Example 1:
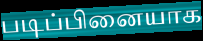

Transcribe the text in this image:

படிப்பினையாக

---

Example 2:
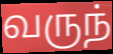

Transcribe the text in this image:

வருந்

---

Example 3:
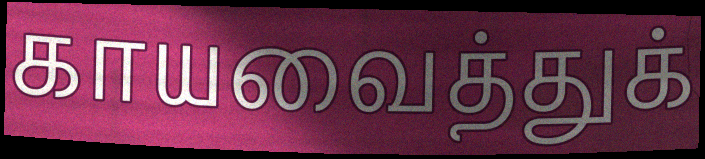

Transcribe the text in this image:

காயவைத்துக்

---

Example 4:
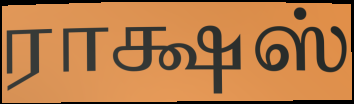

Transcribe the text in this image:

ராக்ஷஸ்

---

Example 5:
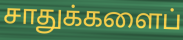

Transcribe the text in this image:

சாதுக்களைப்